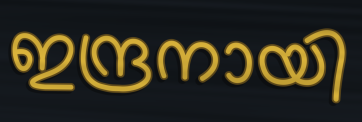
ഇന്ദ്രനായി